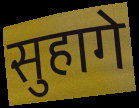
सुहागे